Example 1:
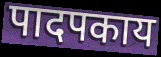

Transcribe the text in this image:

पादपकाय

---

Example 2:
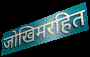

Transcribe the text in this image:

जोखिमरहित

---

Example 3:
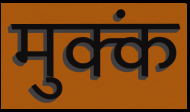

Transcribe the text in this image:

मुक्कं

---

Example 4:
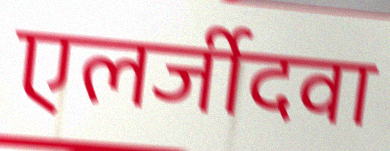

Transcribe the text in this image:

एलर्जीदवा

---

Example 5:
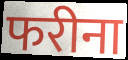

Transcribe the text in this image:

फरीना